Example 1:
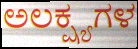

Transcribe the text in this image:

ಅಲಕ್ಷ್ಯಗಳ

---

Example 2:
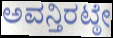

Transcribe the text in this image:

ಅವನ್ತಿರಟ್ಠೇ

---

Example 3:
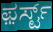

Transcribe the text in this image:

ಫ಼ರ್ಸ್ಟ್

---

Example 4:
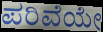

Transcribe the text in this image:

ಪರಿವೆಯೇ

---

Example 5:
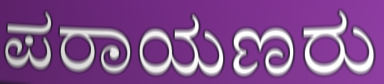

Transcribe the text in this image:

ಪರಾಯಣರು